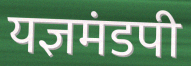
यज्ञमंडपी